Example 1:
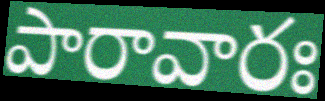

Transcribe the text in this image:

పారావారః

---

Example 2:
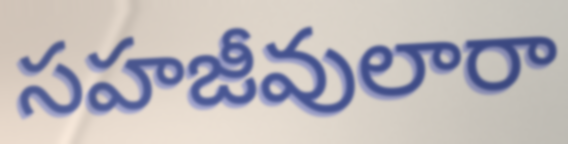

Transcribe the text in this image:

సహజీవులారా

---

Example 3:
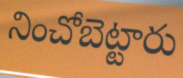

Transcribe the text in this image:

నించోబెట్టారు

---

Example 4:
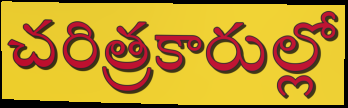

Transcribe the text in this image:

చరిత్రకారుల్లో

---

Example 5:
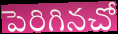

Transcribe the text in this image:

పెరిగినచో